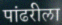
पांढरीला